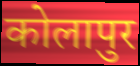
कोलापुर